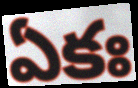
ఏకః